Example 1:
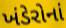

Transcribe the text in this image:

ખંડેરોનાં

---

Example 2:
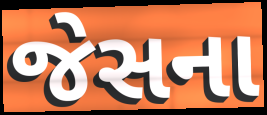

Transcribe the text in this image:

જેસના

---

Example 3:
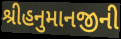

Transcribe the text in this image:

શ્રીહનુમાનજીની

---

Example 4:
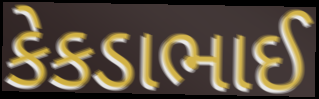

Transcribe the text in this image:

કેકડાભાઈ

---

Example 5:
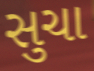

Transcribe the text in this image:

સુચા